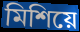
মিশিয়ে